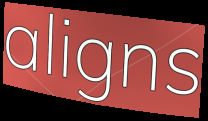
aligns